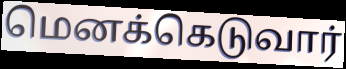
மெனக்கெடுவார்